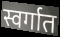
स्वर्गात